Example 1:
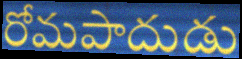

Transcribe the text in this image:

రోమపాదుడు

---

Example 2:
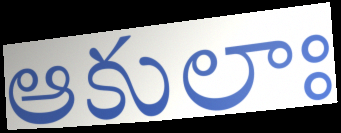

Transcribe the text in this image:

ఆకులాః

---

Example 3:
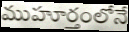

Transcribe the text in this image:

ముహూర్తంలోనే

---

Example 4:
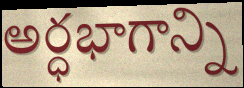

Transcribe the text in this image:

అర్ధభాగాన్ని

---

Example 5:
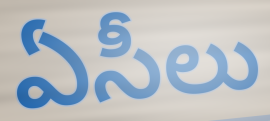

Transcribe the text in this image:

ఏసీలు